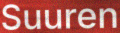
Suuren